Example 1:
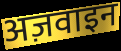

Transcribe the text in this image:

अज़वाइन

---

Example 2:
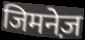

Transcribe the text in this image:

जिमनेज़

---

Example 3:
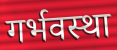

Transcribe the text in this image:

गर्भवस्था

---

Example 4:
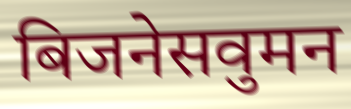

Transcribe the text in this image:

बिजनेसवुमन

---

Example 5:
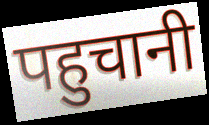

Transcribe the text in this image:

पहुचानी